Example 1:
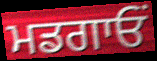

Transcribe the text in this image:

ਮਡਗਾਓਂ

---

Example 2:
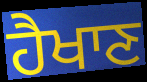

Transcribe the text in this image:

ਹੈਖਾਣ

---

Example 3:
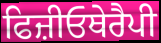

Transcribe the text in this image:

ਫਿਜ਼ੀਓਥੇਰੈਪੀ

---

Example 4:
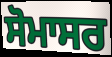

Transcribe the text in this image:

ਸੋਮਾਸਰ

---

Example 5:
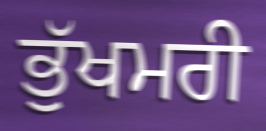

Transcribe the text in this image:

ਭੁੱਖਮਰੀ